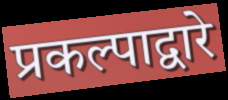
प्रकल्पाद्वारे